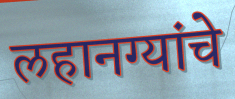
लहानग्यांचे